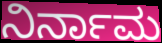
ನಿರ್ನಾಮ